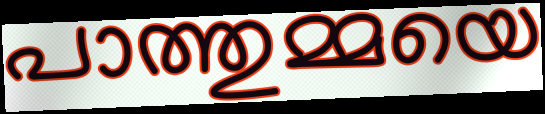
പാത്തുമ്മയെ